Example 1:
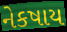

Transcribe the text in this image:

નેકષાય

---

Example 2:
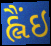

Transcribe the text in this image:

હ્લૈંઇ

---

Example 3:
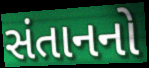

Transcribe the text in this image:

સંતાનનો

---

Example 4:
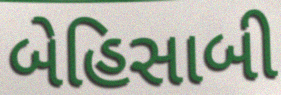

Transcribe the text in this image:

બેહિસાબી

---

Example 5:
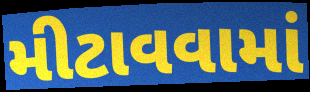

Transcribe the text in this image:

મીટાવવામાં